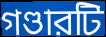
গণ্ডারটি